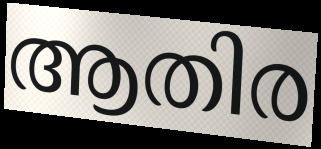
ആതിര